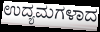
ಉದ್ಯಮಗಳಾದ